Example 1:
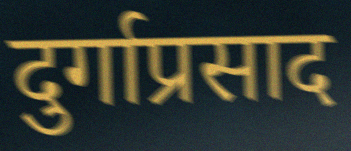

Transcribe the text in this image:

दुर्गाप्रसाद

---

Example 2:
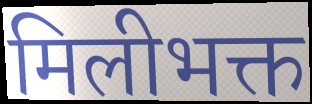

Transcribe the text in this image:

मिलीभक्त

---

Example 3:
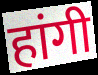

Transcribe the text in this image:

हांगी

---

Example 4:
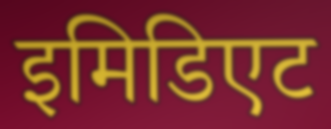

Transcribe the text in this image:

इमिडिएट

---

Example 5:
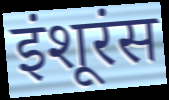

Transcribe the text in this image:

इंशूरंस